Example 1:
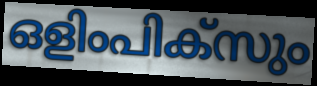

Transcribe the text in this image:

ഒളിംപിക്സും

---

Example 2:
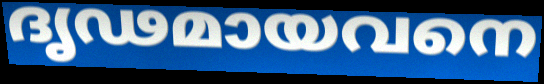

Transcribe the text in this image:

ദൃഢമായവനെ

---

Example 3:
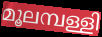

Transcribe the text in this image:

മൂലമ്പള്ളി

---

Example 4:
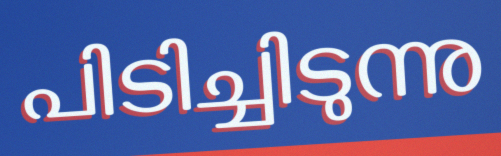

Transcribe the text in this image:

പിടിച്ചിടുന്നു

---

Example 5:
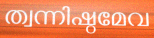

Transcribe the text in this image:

ത്വന്നിഷ്ഠമേവ